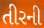
તીરની